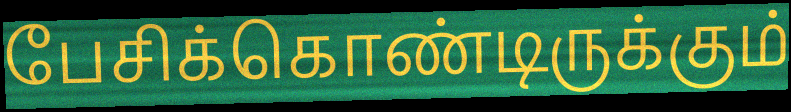
பேசிக்கொண்டிருக்கும்